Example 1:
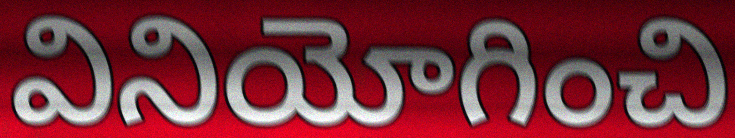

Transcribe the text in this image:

వినియోగించి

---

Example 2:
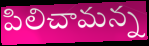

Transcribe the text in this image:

పిలిచామన్న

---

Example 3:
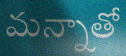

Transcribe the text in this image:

మన్నాతో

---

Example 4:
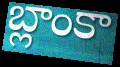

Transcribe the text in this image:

బ్లాంకా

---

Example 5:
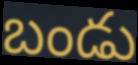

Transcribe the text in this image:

బండు